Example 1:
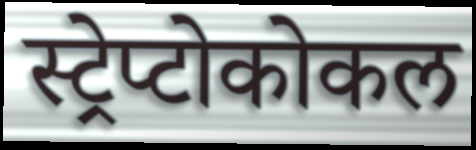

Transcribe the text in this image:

स्ट्रेप्टोकोकल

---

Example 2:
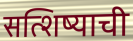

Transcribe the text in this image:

सत्शिष्याची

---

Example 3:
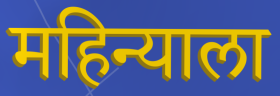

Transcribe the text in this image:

महिन्याला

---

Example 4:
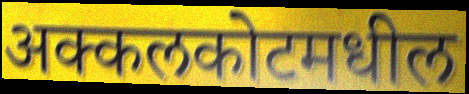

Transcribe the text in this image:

अक्कलकोटमधील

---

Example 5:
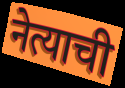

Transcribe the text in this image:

नेत्याची